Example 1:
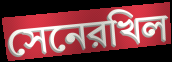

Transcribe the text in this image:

সেনেরখিল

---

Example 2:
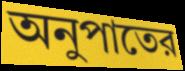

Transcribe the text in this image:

অনুপাতের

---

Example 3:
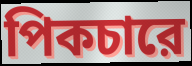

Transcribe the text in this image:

পিকচারে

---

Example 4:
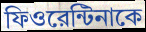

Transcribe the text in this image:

ফিওরেন্টিনাকে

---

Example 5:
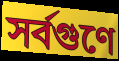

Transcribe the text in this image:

সর্বগুণে